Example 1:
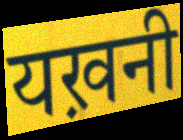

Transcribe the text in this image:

यख़नी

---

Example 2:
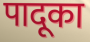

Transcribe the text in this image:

पादूका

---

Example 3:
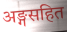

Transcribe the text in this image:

अङ्गसहित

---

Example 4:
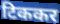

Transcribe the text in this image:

टिककर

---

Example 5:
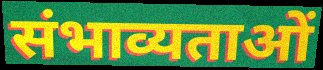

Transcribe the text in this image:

संभाव्यताओं